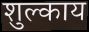
शुल्काय